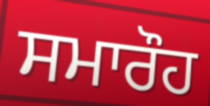
ਸਮਾਰੌਹ